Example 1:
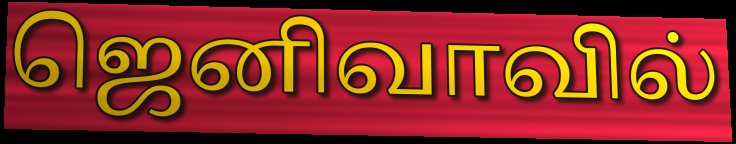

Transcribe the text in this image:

ஜெனிவாவில்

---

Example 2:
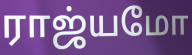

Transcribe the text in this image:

ராஜ்யமோ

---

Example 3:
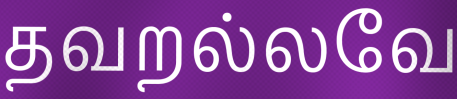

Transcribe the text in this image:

தவறல்லவே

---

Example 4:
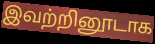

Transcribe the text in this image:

இவற்றினூடாக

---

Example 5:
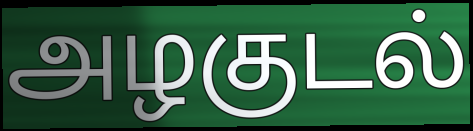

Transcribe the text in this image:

அழகுடல்